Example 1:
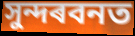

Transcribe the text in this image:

সুন্দৰবনত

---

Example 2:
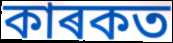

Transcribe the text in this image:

কাৰকত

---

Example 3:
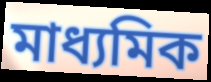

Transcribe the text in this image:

মাধ্যমিক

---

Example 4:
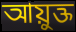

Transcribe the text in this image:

আয়ুক্ত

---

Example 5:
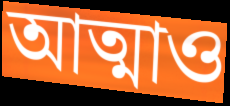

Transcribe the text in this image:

আত্মাও